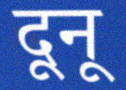
दूनू